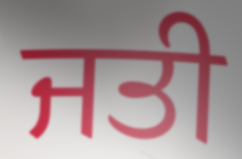
ਜਤੀ